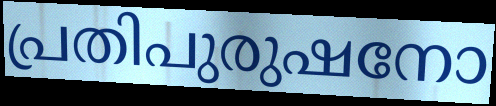
പ്രതിപുരുഷനോ